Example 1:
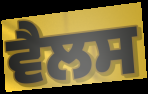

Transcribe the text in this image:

ਵੈਲਸ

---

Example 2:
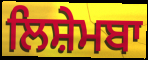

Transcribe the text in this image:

ਲਿਸ਼ੇਮਬਾ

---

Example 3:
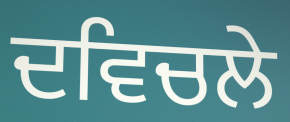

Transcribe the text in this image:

ਦਵਿਚਲੇ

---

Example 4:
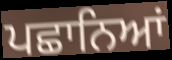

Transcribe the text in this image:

ਪਛਾਨਿਆਂ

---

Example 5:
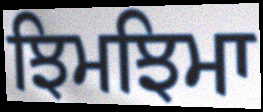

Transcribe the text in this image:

ਝਿਮਝਿਮਾ